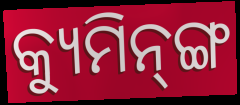
କ୍ୟୁମିନ୍‌ଙ୍ଗ